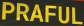
PRAFUL